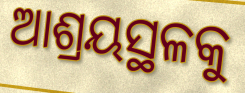
ଆଶ୍ରୟସ୍ଥଳକୁ